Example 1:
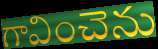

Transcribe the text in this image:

గావించెను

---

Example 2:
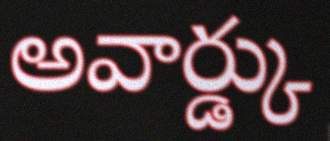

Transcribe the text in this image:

అవార్డ్కు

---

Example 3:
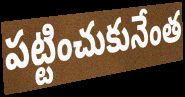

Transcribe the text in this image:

పట్టించుకునేంత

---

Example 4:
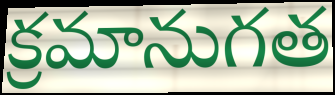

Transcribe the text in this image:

క్రమానుగత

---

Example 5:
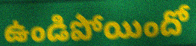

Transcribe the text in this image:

ఉండిపోయిందో